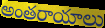
అంతరాయాలు